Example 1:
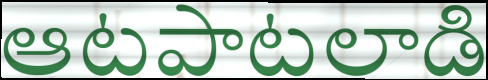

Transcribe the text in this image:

ఆటపాటలాడి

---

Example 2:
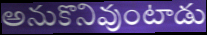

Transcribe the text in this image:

అనుకొనివుంటాడు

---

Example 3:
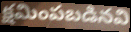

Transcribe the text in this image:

క్షమింపబడినవి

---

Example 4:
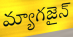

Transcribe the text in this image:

మ్యాగజైన్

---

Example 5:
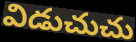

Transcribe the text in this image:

విడుచుచు